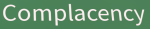
Complacency